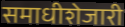
समाधीशेजारी